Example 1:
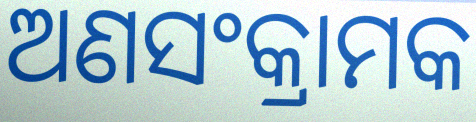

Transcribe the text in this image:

ଅଣସଂକ୍ରାମକ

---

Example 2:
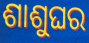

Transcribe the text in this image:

ଶାଶୁଘର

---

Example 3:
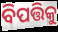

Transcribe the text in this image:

ବିପତ୍ତିକୁ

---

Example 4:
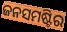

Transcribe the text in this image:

ଜନସମଷ୍ଟିର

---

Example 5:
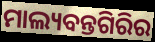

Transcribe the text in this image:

ମାଲ୍ୟବନ୍ତଗିରିର